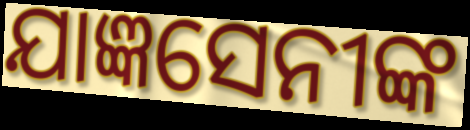
ଯାଜ୍ଞସେନୀଙ୍କ